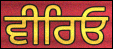
ਵੀਰਿਓ